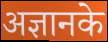
अज्ञानके